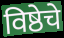
विष्ठेचे